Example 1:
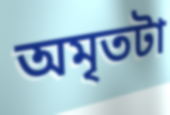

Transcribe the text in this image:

অমৃতটা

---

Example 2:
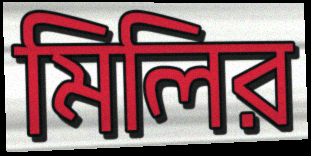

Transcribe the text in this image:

মিলির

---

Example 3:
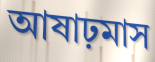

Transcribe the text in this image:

আষাঢ়মাস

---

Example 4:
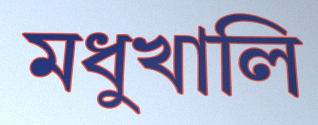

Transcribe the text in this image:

মধুখালি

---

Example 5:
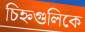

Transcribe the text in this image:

চিহ্নগুলিকে